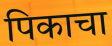
पिकाचा